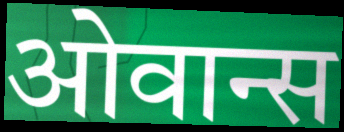
ओवान्स